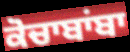
ਕੋਚਾਬਾਂਬਾ